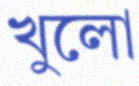
খুলো